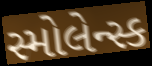
સ્મોલેન્સ્ક